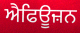
ਐਫਿਊਜ਼ਨ